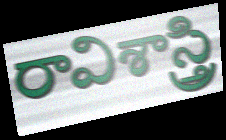
రావిశాస్త్రి